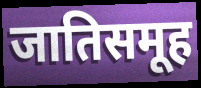
जातिसमूह